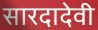
सारदादेवी